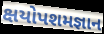
ક્ષયોપશમજ્ઞાન